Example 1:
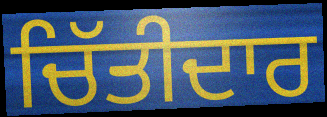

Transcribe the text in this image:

ਚਿੱਤੀਦਾਰ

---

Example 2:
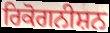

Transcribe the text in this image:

ਰਿਕੋਗਨੀਸ਼ਨ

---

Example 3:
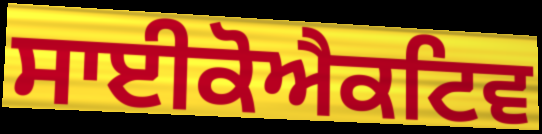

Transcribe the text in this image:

ਸਾਈਕੋਐਕਟਿਵ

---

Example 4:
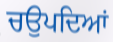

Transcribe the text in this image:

ਚਉਪਦਿਆਂ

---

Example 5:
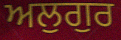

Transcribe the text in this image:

ਅਲੁਗੁਰ